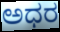
ಅಧರ